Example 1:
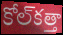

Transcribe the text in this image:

కోల్‌కత్తా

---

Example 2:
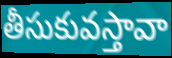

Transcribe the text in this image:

తీసుకువస్తావా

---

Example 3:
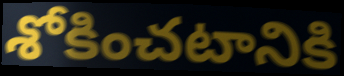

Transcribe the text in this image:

శోకించటానికి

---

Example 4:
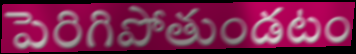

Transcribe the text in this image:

పెరిగిపోతుండటం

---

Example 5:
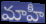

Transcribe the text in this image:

మాహీ